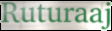
Ruturaaj